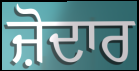
ਜ਼ੋਦਾਰ